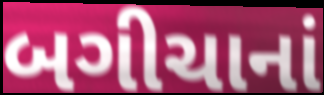
બગીચાનાં